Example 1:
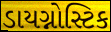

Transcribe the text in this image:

ડાયગ્નોસ્ટિક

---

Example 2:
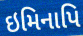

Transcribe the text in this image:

ઇમિનાપિ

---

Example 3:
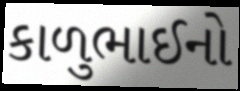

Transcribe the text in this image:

કાળુભાઈનો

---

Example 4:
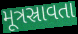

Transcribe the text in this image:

મૂત્રસ્રાવતા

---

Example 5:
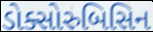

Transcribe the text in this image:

ડોક્સોરુબિસિન